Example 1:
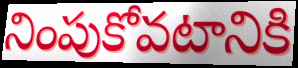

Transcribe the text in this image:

నింపుకోవటానికి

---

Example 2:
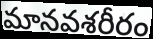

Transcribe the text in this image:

మానవశరీరం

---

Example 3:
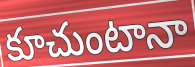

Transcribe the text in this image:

కూచుంటానా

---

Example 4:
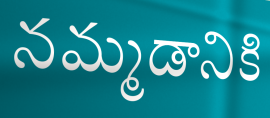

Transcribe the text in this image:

నమ్మడానికి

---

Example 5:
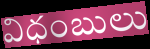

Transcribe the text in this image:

విధంబులు